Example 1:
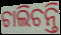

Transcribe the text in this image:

ଚାଲିଚନ୍ତି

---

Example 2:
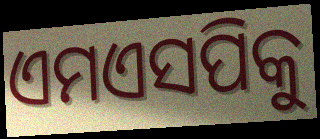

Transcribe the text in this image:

ଏମଏସପିକୁ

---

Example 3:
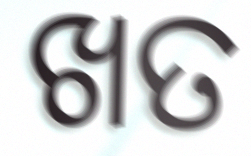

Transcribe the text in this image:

ଖତ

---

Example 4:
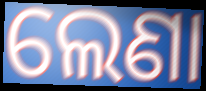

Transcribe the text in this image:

ଲେଣା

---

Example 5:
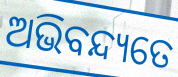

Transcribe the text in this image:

ଅଭିବନ୍ଦ୍ୟତେ